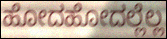
ಹೋದಹೋದಲ್ಲೆಲ್ಲ